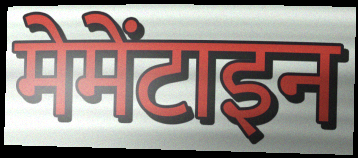
मेमेंटाइन